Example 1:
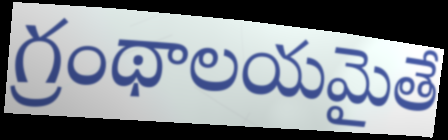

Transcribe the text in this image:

గ్రంథాలయమైతే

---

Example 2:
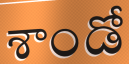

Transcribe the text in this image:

శాండో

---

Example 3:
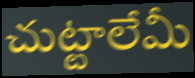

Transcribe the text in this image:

చుట్టాలేమీ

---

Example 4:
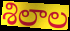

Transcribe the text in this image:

శిలాల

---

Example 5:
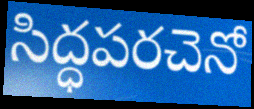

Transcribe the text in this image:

సిద్ధపరచెనో